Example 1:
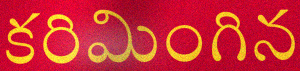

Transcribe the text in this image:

కరిమింగిన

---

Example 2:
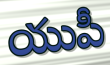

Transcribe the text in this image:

యుపీ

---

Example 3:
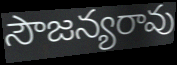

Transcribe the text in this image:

సౌజన్యరావు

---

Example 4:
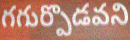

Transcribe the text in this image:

గగుర్పొడవని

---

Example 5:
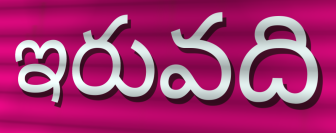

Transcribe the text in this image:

ఇరువది